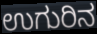
ಉಗುರಿನ